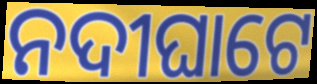
ନଦୀଘାଟେ